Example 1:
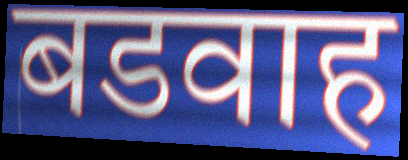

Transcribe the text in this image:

बडवाह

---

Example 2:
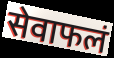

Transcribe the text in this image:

सेवाफलं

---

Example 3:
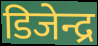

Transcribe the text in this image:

डिजेन्द्र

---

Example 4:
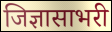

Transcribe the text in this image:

जिज्ञासाभरी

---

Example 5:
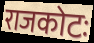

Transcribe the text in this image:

राजकोटः